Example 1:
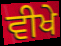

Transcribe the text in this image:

ਵੀਖੇ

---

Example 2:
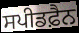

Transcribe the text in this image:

ਸਪੀਡਫ਼ੈਨ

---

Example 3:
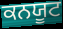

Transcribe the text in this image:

ਕਨਯੂਟ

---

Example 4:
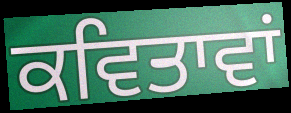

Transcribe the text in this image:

ਕਵਿਤਾਵਾਂ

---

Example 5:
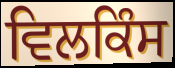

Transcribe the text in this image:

ਵਿਲਕਿੰਸ